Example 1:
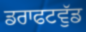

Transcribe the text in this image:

ਡਰਾਫਟਵੁੱਡ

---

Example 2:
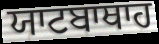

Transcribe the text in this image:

ਯਾਟਬਾਥਾਹ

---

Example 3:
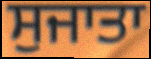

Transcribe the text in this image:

ਸੁਜਾਤਾ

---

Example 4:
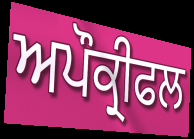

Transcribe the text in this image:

ਅਪੌਕ੍ਰੀਫਲ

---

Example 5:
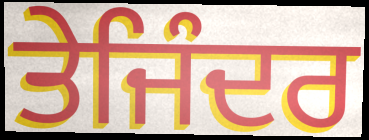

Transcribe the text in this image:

ਤੇਜਿੰਦਰ